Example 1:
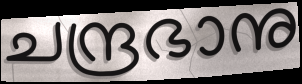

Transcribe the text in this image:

ചന്ദ്രഭാനു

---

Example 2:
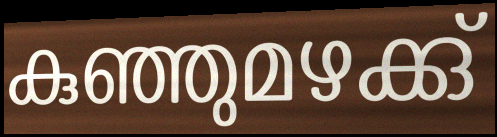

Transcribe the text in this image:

കുഞ്ഞുമഴക്കു്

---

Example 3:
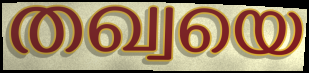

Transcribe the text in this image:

തഖ്വയെ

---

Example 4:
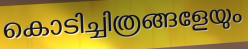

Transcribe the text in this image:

കൊടിച്ചിത്രങ്ങളേയും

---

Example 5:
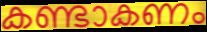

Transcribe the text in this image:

കണ്ടാകണം